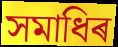
সমাধিৰ